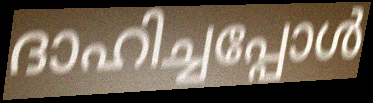
ദാഹിച്ചപ്പോൾ